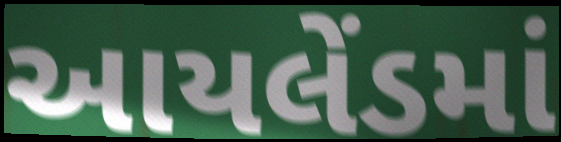
આયલેંડમાં